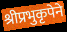
श्रीप्रभुकृपेने